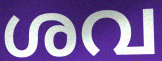
ശവ